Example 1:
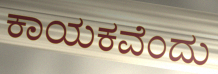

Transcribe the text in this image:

ಕಾಯಕವೆಂದು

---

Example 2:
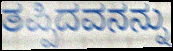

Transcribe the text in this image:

ತಪ್ಪಿದವನನ್ನು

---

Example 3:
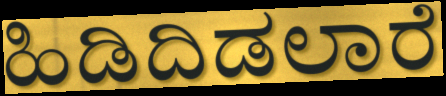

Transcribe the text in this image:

ಹಿಡಿದಿಡಲಾರೆ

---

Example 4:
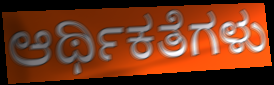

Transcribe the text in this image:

ಆರ್ಥಿಕತೆಗಳು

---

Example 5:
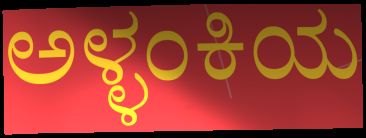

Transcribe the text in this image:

ಅಳ್ಳಂಕಿಯ